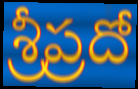
శ్రీప్రదో